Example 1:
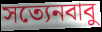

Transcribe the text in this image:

সত্যেনবাবু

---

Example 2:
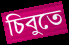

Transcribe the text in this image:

চিবুতে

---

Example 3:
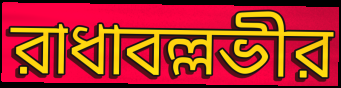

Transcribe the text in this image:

রাধাবল্লভীর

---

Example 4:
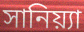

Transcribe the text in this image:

সানিয়্যা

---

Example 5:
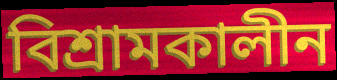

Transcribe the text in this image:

বিশ্রামকালীন